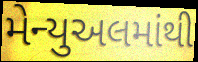
મેન્યુઅલમાંથી